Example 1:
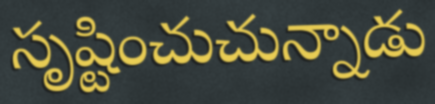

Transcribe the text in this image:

సృష్టించుచున్నాడు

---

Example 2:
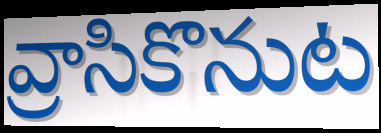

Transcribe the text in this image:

వ్రాసికొనుట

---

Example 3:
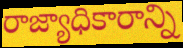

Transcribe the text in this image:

రాజ్యాధికారాన్ని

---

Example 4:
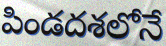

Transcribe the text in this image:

పిండదశలోనే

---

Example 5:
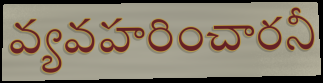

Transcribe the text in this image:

వ్యవహరించారనీ